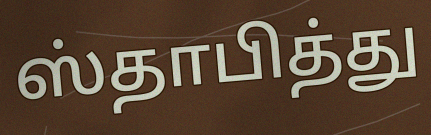
ஸ்தாபித்து